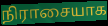
நிராசையாக